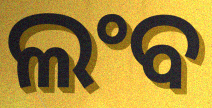
ଲଂବ